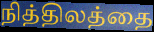
நித்திலத்தை